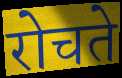
रोचते